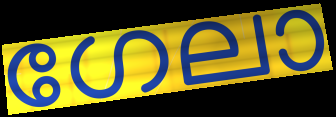
ഗേലാ